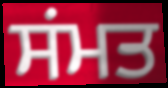
ਸਂਮਤ